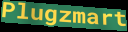
Plugzmart